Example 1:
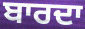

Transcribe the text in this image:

ਬਾਰਦਾ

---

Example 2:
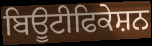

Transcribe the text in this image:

ਬਿਊਟੀਫਿਕੇਸ਼ਨ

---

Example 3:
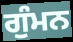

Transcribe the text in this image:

ਗੁੰਮਨ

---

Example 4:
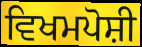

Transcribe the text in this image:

ਵਿਖਮਪੋਸ਼ੀ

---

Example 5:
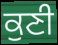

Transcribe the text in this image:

ਕੁਣੀ